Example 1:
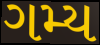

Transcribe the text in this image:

ગમ્ય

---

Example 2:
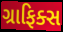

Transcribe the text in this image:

ગ્રાફિક્સ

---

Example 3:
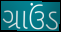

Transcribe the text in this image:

ગ્રાઉંડ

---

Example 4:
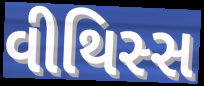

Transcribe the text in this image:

વીથિસ્સ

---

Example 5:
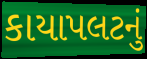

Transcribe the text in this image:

કાયાપલટનું